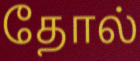
தோல்